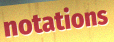
notations